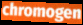
chromogen